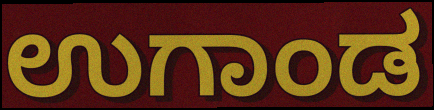
ಉಗಾಂಡ